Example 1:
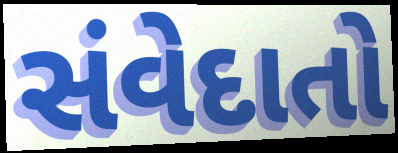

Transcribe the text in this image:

સંવેદાતો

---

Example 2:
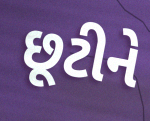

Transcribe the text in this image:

છૂટીને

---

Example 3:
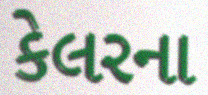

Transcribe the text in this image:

કેલરના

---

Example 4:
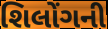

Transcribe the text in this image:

શિલોંગની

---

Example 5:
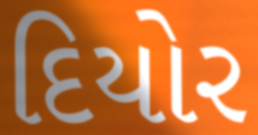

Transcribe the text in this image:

દિયોર